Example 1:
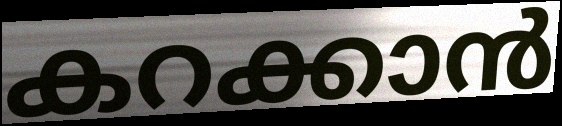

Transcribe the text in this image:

കറക്കാൻ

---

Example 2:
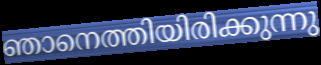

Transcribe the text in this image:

ഞാനെത്തിയിരിക്കുന്നു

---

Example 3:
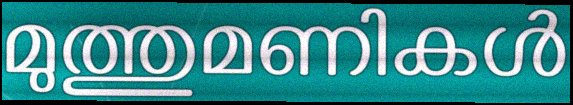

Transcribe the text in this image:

മുത്തുമണികൾ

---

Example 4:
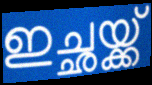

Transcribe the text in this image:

ഇച്ഛയ്ക്ക്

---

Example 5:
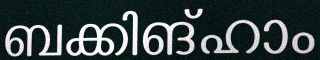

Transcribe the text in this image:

ബക്കിങ്ഹാം